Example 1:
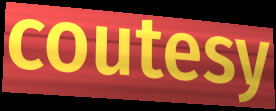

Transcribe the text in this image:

coutesy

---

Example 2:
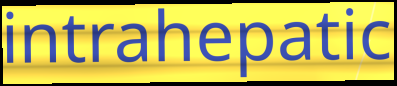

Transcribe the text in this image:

intrahepatic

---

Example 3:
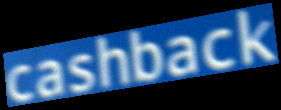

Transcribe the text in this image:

cashback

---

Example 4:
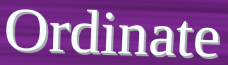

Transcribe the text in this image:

Ordinate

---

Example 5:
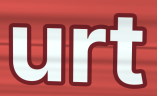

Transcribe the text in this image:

urt